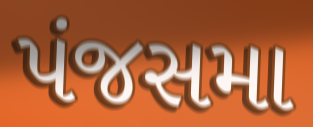
પંજસમા